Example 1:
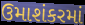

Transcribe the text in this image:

ઉમાશંકરમાં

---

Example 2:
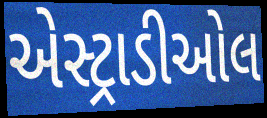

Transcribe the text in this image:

એસ્ટ્રાડીઓલ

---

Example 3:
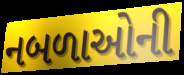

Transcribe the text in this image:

નબળાઓની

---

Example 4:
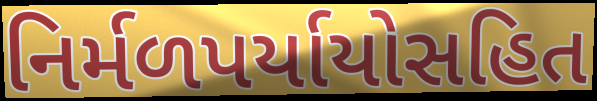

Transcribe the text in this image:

નિર્મળપર્યાયોસહિત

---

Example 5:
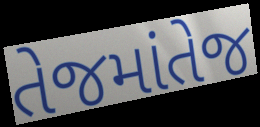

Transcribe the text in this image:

તેજમાંતેજ